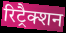
रिट्रैक्शन